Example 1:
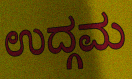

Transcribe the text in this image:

ಉದ್ಗಮ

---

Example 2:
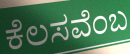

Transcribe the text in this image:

ಕೆಲಸವೆಂಬ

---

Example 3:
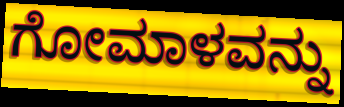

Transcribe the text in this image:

ಗೋಮಾಳವನ್ನು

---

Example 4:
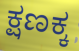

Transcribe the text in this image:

ಕ್ಷಣಕ್ಕ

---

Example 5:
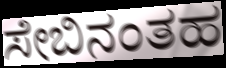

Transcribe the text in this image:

ಸೇಬಿನಂತಹ